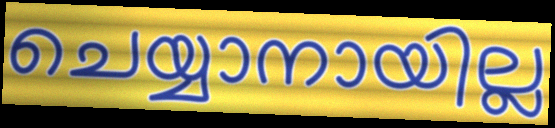
ചെയ്യാനായില്ല